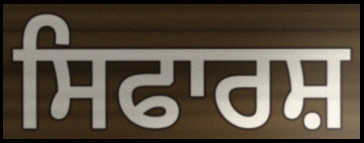
ਸਿਫਾਰਸ਼